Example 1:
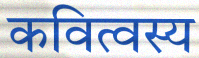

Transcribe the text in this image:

कवित्वस्य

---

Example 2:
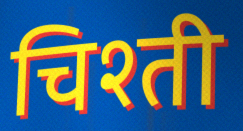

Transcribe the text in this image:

चिश्ती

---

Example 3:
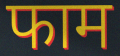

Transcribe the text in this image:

फाम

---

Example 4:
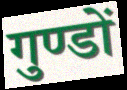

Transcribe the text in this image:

गुण्डों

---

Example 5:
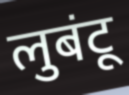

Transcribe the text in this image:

लुबंटू